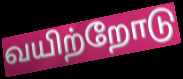
வயிற்றோடு